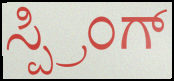
ಸ್ಪ್ರಿಂಗ್